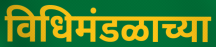
विधिमंडळाच्या